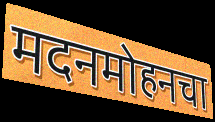
मदनमोहनचा